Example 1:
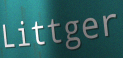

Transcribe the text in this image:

Littger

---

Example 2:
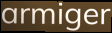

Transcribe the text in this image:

armiger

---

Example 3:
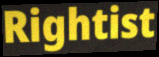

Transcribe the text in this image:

Rightist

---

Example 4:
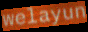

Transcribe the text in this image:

welayun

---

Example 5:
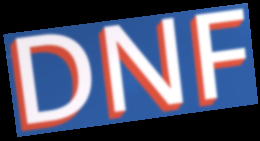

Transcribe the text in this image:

DNF